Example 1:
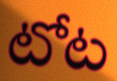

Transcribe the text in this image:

టోట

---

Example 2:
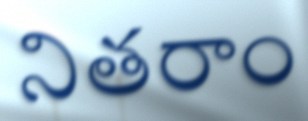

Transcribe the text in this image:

నితరాం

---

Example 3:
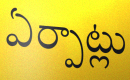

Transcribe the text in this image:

ఏర్పాట్లు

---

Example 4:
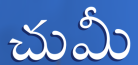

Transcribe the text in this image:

చుమీ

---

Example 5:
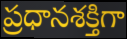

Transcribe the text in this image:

ప్రధానశక్తిగా